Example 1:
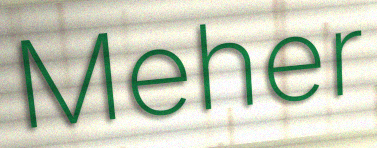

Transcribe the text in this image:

Meher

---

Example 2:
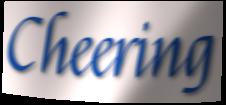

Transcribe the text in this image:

Cheering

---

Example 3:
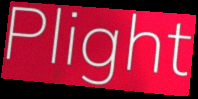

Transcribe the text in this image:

Plight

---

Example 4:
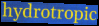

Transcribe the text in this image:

hydrotropic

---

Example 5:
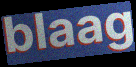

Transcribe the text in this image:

blaag